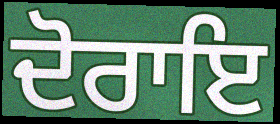
ਦੋਰਾਇ